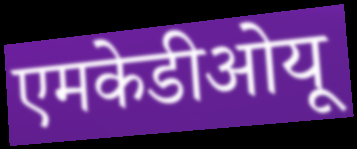
एमकेडीओयू